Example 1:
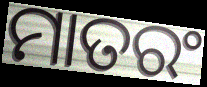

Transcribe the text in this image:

ମାତରଂ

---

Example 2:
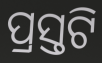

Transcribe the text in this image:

ପ୍ରସ୍ତଟି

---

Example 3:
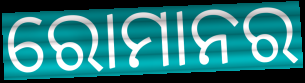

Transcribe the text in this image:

ରୋମାନର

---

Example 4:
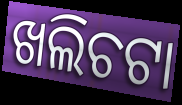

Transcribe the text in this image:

ଖଲିଚଟା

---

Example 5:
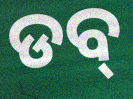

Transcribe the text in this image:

ଡବ୍